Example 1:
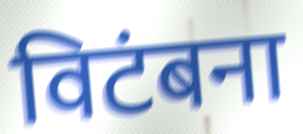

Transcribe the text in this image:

विटंबना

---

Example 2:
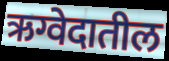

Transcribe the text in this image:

ऋग्वेदातील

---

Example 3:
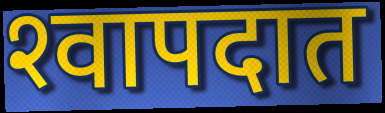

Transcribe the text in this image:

श्वापदात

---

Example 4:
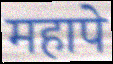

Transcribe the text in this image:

महापे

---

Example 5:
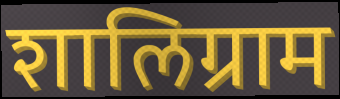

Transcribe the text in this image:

शालिग्राम